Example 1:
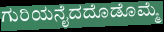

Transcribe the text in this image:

ಗುರಿಯನೈದದೊಡೊಮ್ಮೆ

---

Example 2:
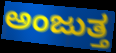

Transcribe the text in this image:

ಅಂಜುತ್ತ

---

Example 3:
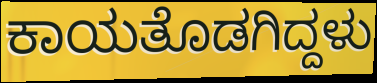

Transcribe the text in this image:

ಕಾಯತೊಡಗಿದ್ದಳು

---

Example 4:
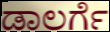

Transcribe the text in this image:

ಡಾಲರ್ಗೆ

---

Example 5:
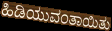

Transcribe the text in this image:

ಹಿಡಿಯುವಂತಾಯಿತು